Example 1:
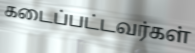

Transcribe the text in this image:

கடைப்பட்டவர்கள்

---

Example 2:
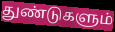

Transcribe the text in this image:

துண்டுகளும்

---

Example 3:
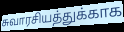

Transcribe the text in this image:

சுவாரசியத்துக்காக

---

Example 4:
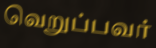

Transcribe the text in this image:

வெறுப்பவர்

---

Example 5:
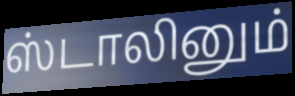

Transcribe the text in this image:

ஸ்டாலினும்